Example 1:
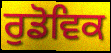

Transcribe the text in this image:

ਰੁਡੋਵਿਕ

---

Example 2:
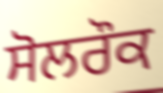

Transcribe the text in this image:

ਸੋਲਰੌਕ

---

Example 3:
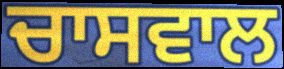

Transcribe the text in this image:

ਚਾਸਵਾਲ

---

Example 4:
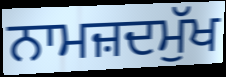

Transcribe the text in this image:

ਨਾਮਜ਼ਦਮੁੱਖ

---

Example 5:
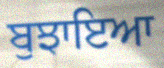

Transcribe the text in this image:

ਬੁਝਾਇਆ